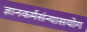
ज्ञानकर्मसंन्यासयोग